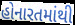
હોનારતમાંથી